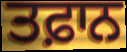
ਤਫ਼ਾਨ